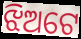
ଝିଅଟେ